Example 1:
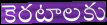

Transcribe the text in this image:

కెరటాలకు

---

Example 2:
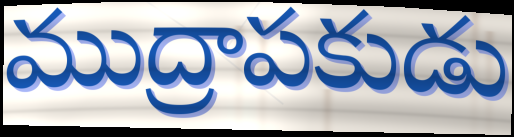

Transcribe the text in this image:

ముద్రాపకుడు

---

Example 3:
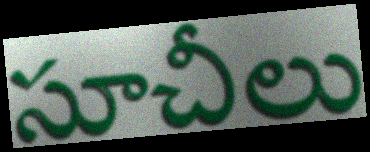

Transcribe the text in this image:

సూచీలు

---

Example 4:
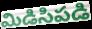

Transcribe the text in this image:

మిడిసిపడి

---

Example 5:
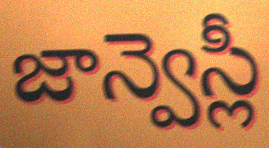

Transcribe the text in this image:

జాన్వెస్లీ